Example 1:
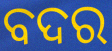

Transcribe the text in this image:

ବଦର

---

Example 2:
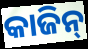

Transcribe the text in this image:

କାଜିନ୍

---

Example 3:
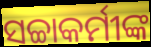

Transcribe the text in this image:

ସଚ୍ଚାକର୍ମୀଙ୍କ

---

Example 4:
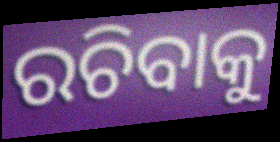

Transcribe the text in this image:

ରଚିବାକୁ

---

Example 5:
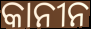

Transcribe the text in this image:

କାନୀନ